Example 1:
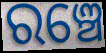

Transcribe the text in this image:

ରଞ୍ଚେ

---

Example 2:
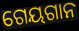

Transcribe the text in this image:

ଗେୟଗାନ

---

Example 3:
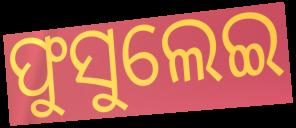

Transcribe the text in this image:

ଫୁସୁଲେଇ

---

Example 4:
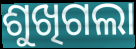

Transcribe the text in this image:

ଶୁଖିଗଲା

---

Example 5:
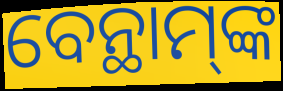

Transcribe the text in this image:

ବେନ୍ଥାମ୍‌ଙ୍କ